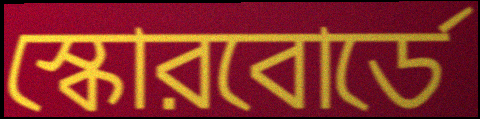
স্কোরবোর্ডে